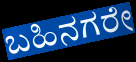
ಬಹಿನಗರೇ